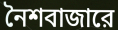
নৈশবাজারে